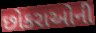
છોકરાઓની